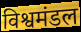
विश्वमंडल